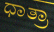
ಧಾತ್ರಾ